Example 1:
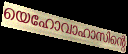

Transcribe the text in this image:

യെഹോവാഹാസിന്റെ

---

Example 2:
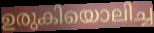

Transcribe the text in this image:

ഉരുകിയൊലിച്ച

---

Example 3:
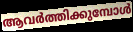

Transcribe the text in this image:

ആവർത്തിക്കുമ്പോൾ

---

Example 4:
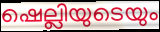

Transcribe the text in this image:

ഷെല്ലിയുടെയും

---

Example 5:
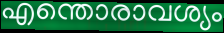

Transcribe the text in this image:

എന്തൊരാവശ്യം